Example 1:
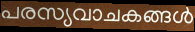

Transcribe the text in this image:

പരസ്യവാചകങ്ങൾ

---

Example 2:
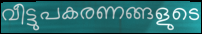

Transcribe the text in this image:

വീട്ടുപകരണങ്ങളുടെ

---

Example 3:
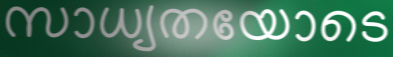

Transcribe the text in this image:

സാധ്യതയോടെ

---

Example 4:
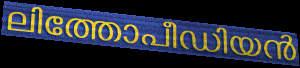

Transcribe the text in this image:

ലിത്തോപീഡിയൻ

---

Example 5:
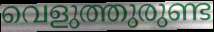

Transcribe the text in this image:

വെളുത്തുരുണ്ട